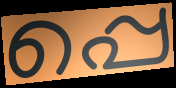
പ്പെ